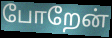
போறேன்